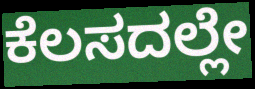
ಕೆಲಸದಲ್ಲೇ